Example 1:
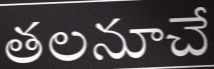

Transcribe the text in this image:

తలనూచే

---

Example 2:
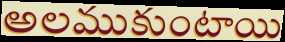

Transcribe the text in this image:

అలముకుంటాయి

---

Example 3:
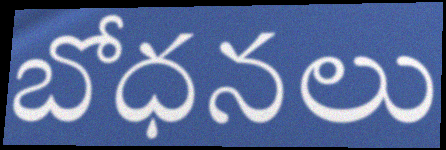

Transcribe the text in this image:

బోధనలు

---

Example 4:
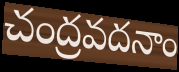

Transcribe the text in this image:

చంద్రవదనాం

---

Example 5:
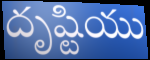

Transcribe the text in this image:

దృష్టియు